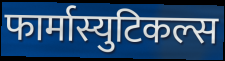
फार्मास्युटिकल्स